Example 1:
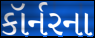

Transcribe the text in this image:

કૉર્નરના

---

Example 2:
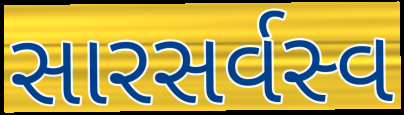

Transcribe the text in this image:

સારસર્વસ્વ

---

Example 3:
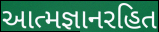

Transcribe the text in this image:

આત્મજ્ઞાનરહિત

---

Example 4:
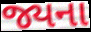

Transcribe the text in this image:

જ્યના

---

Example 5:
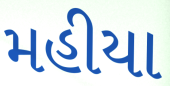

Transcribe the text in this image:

મહીયા